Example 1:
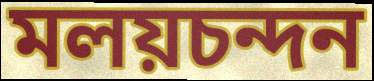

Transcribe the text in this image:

মলয়চন্দন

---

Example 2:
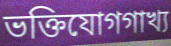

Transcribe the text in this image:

ভক্তিযোগগাখ্য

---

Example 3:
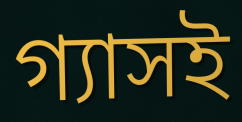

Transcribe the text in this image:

গ্যাসই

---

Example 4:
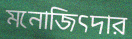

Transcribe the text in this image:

মনোজিৎদার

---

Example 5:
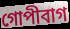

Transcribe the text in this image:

গোপীবাগ